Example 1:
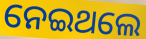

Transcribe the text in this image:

ନେଇଥଲେ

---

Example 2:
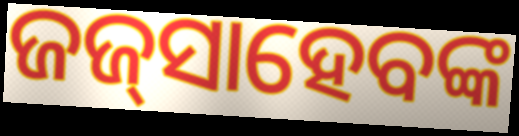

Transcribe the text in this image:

ଜଜ୍‍ସାହେବଙ୍କ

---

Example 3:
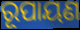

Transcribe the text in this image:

ରୂପାୟଣ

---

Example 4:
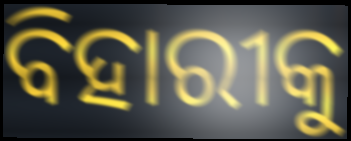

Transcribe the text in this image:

ବିହାରୀକୁ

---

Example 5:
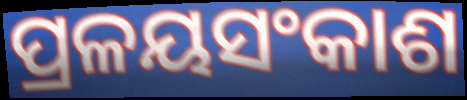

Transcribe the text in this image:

ପ୍ରଳୟସଂକାଶ